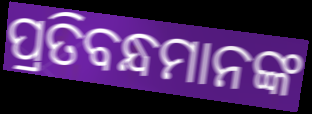
ପ୍ରତିବନ୍ଧମାନଙ୍କ